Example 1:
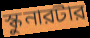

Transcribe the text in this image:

স্কুনারটার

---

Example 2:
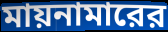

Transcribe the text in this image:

মায়নামারের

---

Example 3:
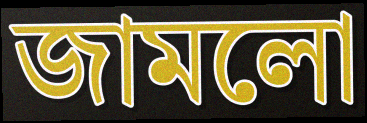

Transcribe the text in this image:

জামলো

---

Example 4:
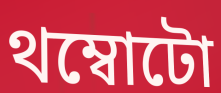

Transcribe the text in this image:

থম্বোটো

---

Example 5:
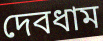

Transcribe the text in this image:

দেবধাম